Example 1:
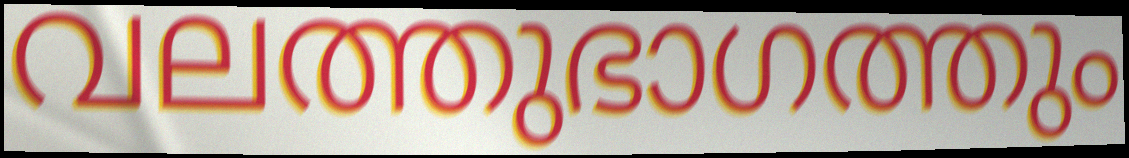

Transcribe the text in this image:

വലത്തുഭാഗത്തും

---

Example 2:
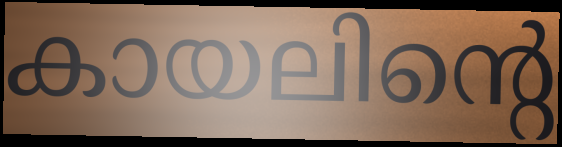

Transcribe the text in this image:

കായലിന്റെ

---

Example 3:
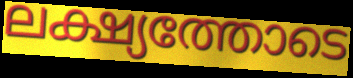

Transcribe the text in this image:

ലക്ഷ്യത്തോടെ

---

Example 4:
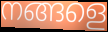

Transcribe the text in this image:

നങ്ങളെ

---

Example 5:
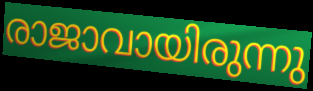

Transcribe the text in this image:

രാജാവായിരുന്നു